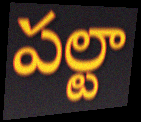
పల్టా